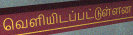
வெளியிடப்பட்டுள்ளன